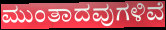
ಮುಂತಾದವುಗಳಿವೆ